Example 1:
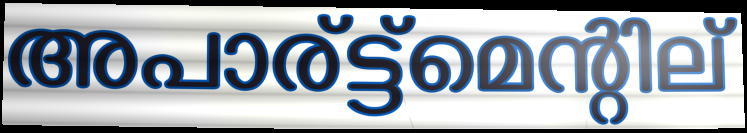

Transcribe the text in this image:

അപാര്ട്ട്മെന്റില്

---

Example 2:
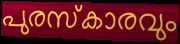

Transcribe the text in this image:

പുരസ്കാരവും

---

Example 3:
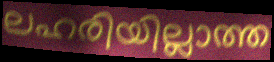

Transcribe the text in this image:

ലഹരിയില്ലാത്ത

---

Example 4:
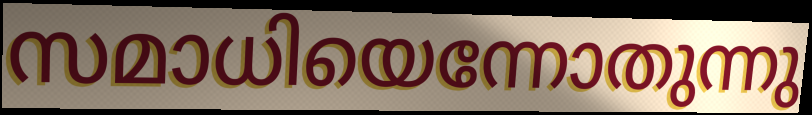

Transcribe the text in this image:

സമാധിയെന്നോതുന്നു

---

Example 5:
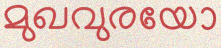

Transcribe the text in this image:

മുഖവുരയോ